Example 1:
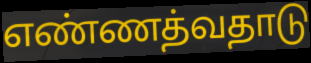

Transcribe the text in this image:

எண்ணத்வதாடு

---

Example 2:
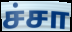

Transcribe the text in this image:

ச்சா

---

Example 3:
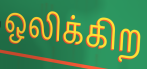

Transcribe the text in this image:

ஒலிக்கிற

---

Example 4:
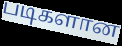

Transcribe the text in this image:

படிகளான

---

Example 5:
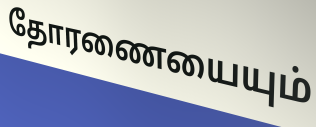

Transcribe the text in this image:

தோரணையையும்